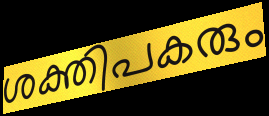
ശക്തിപകരും